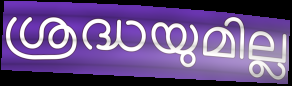
ശ്രദ്ധയുമില്ല